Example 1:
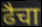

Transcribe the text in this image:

ढैचा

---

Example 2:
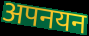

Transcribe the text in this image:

अपनयन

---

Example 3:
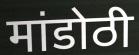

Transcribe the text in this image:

मांडोठी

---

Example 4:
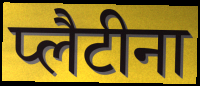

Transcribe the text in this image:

प्लैटीना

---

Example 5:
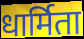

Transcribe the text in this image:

धार्मिता